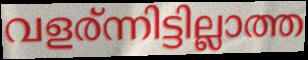
വളര്ന്നിട്ടില്ലാത്ത